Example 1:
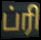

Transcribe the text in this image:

ப்ரி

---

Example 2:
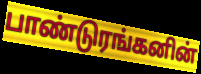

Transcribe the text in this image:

பாண்டுரங்கனின்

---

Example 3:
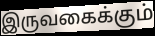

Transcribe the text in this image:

இருவகைக்கும்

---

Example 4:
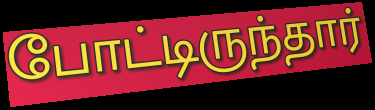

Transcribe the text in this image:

போட்டிருந்தார்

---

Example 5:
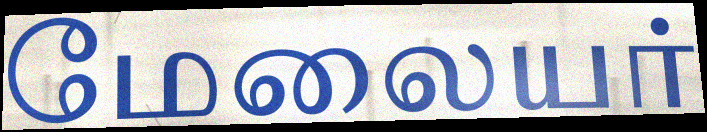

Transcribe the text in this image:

மேலையர்